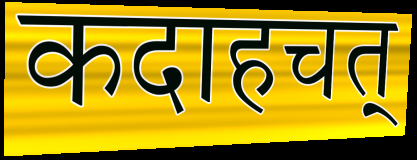
कदाहचत्